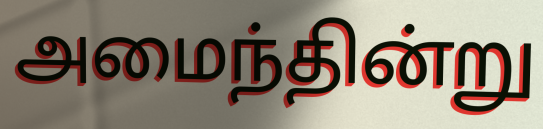
அமைந்தின்று